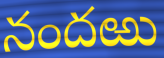
నందఱు